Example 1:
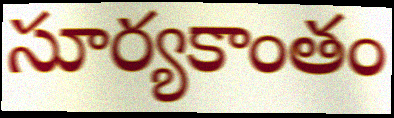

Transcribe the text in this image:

సూర్యకాంతం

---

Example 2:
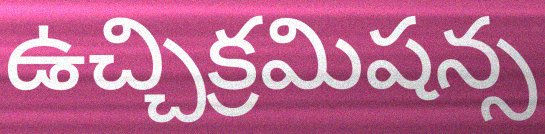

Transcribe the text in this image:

ఉచ్చిక్రమిషన్స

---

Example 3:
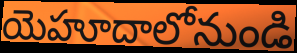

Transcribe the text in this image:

యెహూదాలోనుండి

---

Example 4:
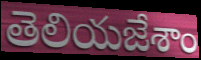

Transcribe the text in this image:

తెలియజేశాం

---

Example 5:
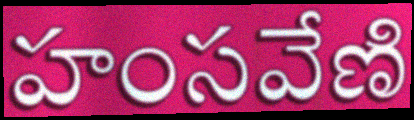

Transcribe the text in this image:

హంసవేణి